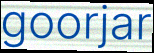
goorjar